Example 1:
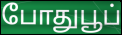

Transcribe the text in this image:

போதுபூப்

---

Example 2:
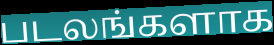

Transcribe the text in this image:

படலங்களாக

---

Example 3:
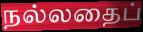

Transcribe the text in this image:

நல்லதைப்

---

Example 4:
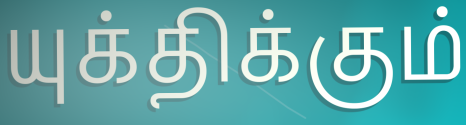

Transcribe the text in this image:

யுக்திக்கும்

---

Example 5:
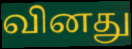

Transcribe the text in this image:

வினது